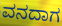
ವನದಾಗ